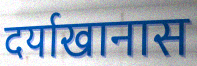
दर्याखानास